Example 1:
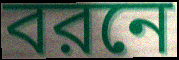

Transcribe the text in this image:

বরনে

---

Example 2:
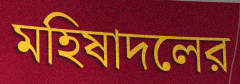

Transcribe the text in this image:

মহিষাদলের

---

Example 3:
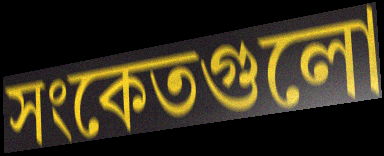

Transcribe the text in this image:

সংকেতগুলো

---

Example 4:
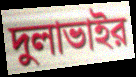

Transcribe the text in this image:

দুলাভাইর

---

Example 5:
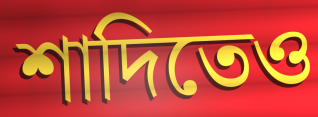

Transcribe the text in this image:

শাদিতেও